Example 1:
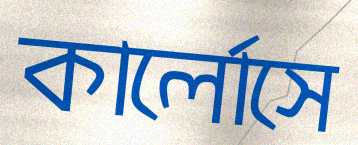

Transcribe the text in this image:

কার্লোসে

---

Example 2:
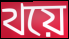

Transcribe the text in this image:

থয়ে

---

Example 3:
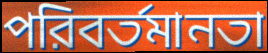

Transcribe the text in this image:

পরিবর্তমানতা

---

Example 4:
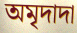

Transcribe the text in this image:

অমৃদাদা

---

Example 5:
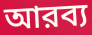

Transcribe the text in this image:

আরব্য